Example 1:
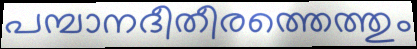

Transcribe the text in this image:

പമ്പാനദീതീരത്തെത്തും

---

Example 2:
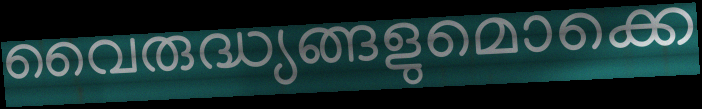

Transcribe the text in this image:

വൈരുദ്ധ്യങ്ങളുമൊക്കെ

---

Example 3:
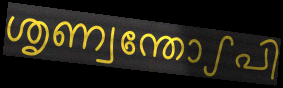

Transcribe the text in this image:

ശൃണ്വന്തോഽപി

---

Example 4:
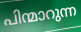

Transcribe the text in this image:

പിന്മാറുന്ന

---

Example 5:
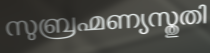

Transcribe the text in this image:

സുബ്രഹ്മണ്യസ്തുതി